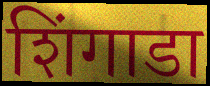
शिंगाडा